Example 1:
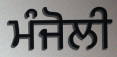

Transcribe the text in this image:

ਮੰਜੋਲੀ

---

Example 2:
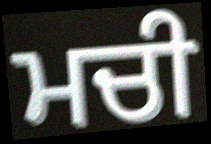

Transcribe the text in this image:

ਮਚੀ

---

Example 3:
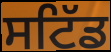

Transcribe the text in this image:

ਸਟਿੱਡ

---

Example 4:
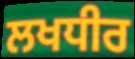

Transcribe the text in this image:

ਲਖਧੀਰ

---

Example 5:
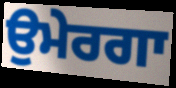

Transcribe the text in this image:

ਉਮੇਰਗਾ